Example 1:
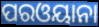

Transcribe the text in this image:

ପରଓୟାନା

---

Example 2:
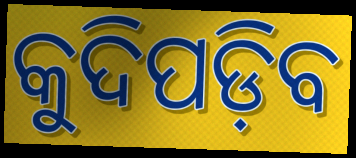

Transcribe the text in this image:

କୁଦିପଡ଼ିବ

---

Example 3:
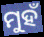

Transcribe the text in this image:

ମୁହଁ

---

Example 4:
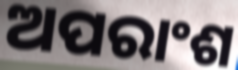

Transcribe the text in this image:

ଅପରାଂଶ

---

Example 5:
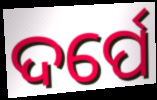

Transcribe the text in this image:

ଦର୍ପେ